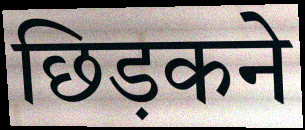
छिड़कने